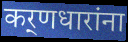
कर्णधारांना